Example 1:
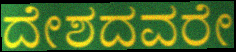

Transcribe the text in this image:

ದೇಶದವರೇ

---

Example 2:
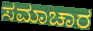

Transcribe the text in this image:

ಸಮಾಚಾರ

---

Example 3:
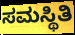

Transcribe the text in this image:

ಸಮಸ್ಥಿತಿ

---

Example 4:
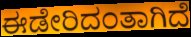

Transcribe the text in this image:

ಈಡೇರಿದಂತಾಗಿದೆ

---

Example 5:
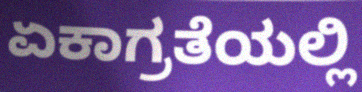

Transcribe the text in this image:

ಏಕಾಗ್ರತೆಯಲ್ಲಿ